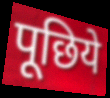
पूछिये